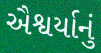
ઐશ્વર્યાનું